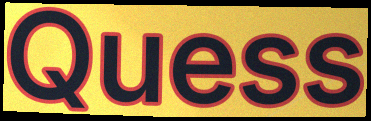
Quess